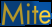
Mite